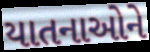
યાતનાઓને